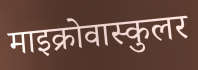
माइक्रोवास्कुलर